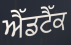
ਐੱਡਟੈੱਕ